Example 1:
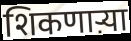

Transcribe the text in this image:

शिकणाऱ्‍या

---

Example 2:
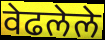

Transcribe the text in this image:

वेढलेले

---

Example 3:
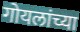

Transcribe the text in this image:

गोयलांच्या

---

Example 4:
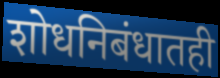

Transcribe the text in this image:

शोधनिबंधातही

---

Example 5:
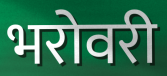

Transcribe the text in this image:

भरोवरी